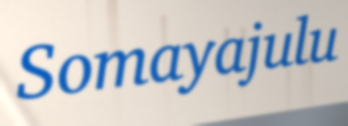
Somayajulu